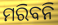
ମରିବନି